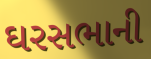
ઘરસભાની